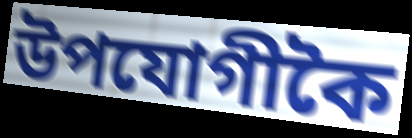
উপযোগীকৈ